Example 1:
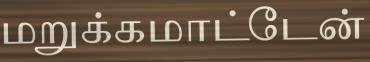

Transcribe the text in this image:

மறுக்கமாட்டேன்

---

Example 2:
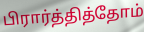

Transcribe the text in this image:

பிரார்த்தித்தோம்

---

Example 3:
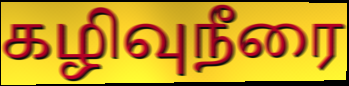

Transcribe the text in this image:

கழிவுநீரை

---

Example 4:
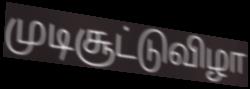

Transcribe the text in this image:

முடிசூட்டுவிழா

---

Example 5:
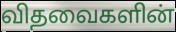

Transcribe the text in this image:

விதவைகளின்